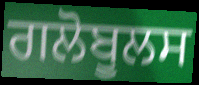
ਗਲੋਬੂਲਸ